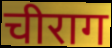
चीराग